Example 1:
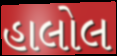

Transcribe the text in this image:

હાલોલ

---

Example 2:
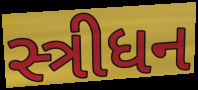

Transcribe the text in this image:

સ્ત્રીધન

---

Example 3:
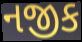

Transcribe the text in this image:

નજીક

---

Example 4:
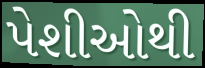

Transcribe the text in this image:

પેશીઓથી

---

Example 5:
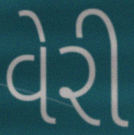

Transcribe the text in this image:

વેરી